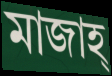
মাজাহ্